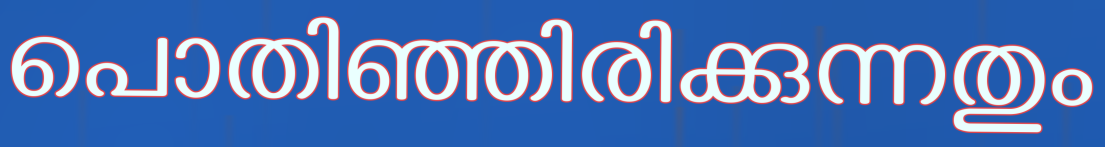
പൊതിഞ്ഞിരിക്കുന്നതും